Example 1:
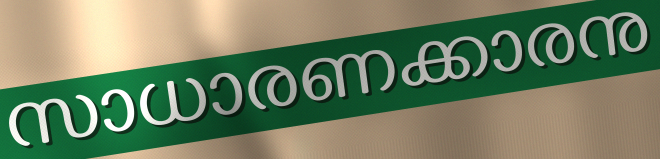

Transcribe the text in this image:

സാധാരണക്കാരനു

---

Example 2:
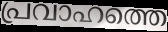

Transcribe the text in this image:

പ്രവാഹത്തെ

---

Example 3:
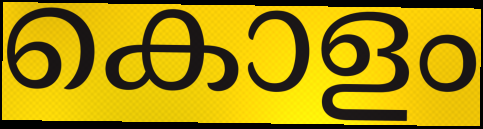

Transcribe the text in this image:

കൊളം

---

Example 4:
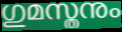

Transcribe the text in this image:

ഗുമസ്തനും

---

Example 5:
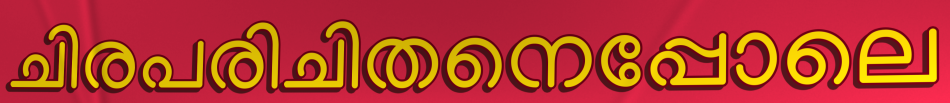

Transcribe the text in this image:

ചിരപരിചിതനെപ്പോലെ